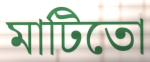
মাটিতো